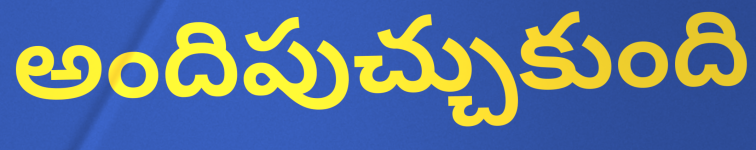
అందిపుచ్చుకుంది